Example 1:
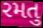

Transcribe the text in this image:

રમતુ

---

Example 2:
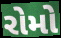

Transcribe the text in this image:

રોમો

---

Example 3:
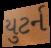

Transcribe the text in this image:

યુટર્ન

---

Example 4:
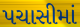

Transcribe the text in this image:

પચાસીમાં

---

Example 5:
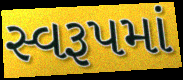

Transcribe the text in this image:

સ્વરૂપમાં